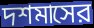
দশমাসের